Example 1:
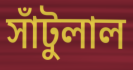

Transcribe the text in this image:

সাঁটুলাল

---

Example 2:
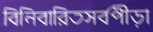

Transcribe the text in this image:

বিনিবারিতসর্বপীড়া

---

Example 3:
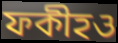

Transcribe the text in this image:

ফকীহও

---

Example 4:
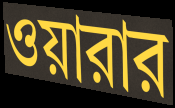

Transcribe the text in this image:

ওয়ারার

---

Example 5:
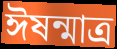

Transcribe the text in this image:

ঈষন্মাত্র